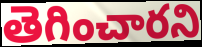
తెగించారని